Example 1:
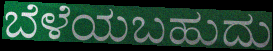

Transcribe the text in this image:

ಬೆಳೆಯಬಹುದು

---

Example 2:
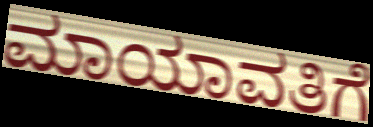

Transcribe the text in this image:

ಮಾಯಾವತಿಗೆ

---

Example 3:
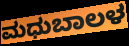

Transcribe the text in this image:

ಮಧುಬಾಲಳ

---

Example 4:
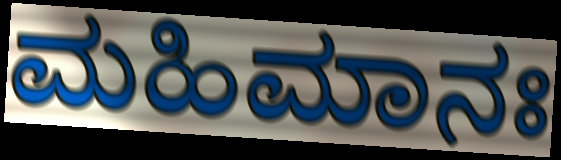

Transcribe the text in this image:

ಮಹಿಮಾನಃ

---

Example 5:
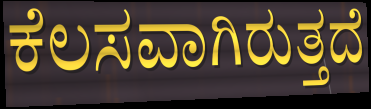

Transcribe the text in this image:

ಕೆಲಸವಾಗಿರುತ್ತದೆ